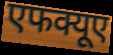
एफक्यूए